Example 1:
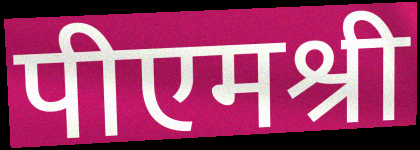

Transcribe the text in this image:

पीएमश्री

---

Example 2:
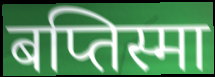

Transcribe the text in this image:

बप्तिस्मा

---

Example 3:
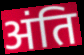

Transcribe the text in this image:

अंति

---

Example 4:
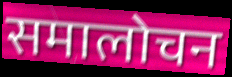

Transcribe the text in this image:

समालोचन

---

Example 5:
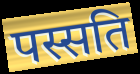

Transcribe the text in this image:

पस्सति